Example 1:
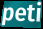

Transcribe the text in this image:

peti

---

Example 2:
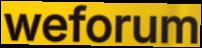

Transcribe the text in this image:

weforum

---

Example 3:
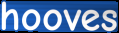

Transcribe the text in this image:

hooves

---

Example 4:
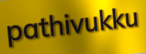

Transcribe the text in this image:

pathivukku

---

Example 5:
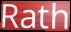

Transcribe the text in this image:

Rath